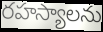
రహస్యాలను